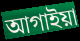
আগাইয়া